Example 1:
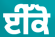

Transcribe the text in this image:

ਈੱਕੋ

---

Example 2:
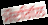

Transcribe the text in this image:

ਮੌਦਗਿੱਲ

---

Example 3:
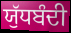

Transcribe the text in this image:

ਯੁੱਧਬੰਦੀ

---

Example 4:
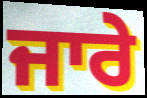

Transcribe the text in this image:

ਜਾਰੇ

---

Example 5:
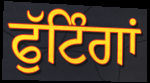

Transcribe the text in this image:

ਫੁੱਟਿੰਗਾਂ